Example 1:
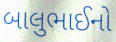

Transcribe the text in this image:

બાલુભાઈનો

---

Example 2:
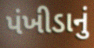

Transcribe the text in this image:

પંખીડાનું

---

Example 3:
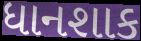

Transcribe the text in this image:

ધાનશાક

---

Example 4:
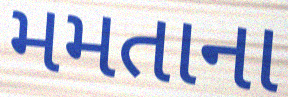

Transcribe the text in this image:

મમતાના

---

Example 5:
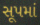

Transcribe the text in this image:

સૂપમાં